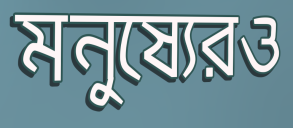
মনুষ্যেরও